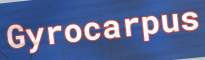
Gyrocarpus